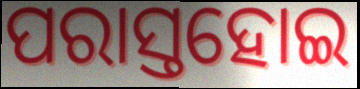
ପରାସ୍ତହୋଇ